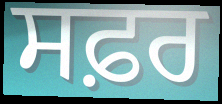
ਸਫ਼ਰ